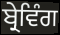
ਬ੍ਰੇਵਿੰਗ